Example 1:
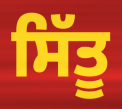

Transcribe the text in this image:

ਸਿੱਤੂ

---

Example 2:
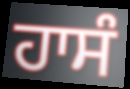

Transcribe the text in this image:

ਹਾਸੰ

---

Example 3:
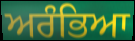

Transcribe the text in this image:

ਅਰੰਭਿਆ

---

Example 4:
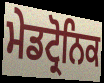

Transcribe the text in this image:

ਮੇਡਟ੍ਰੋਨਿਕ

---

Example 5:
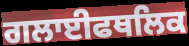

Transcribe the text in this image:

ਗਲਾਈਫਥਲਿਕ